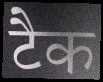
टैक